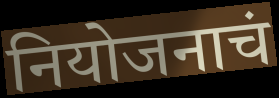
नियोजनाचं